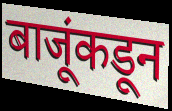
बाजूंकडून